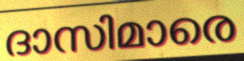
ദാസിമാരെ